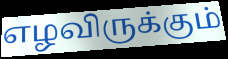
எழவிருக்கும்